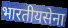
भारतीयसेना